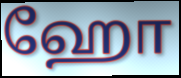
ஹோ